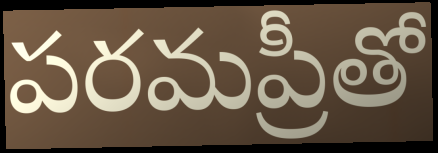
పరమప్రీతో